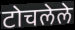
टोचलेले